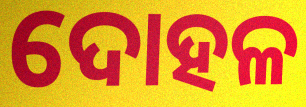
ଦୋହଳ